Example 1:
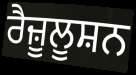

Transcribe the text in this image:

ਰੈਜ਼ੂਲੂਸ਼ਨ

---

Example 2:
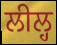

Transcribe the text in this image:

ਲੀਲ੍ਹ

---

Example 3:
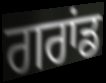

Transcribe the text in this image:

ਗਰਾਂਡ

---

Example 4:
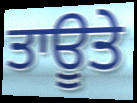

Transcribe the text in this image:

ਤਾਊਤੇ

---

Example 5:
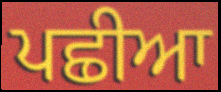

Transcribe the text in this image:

ਪਛੀਆ